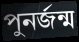
পুনর্জন্ম